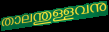
താലന്തുള്ളവനു